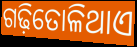
ଗଢ଼ିତୋଳିଥାଏ